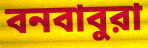
বনবাবুরা